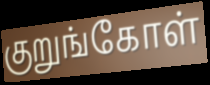
குறுங்கோள்